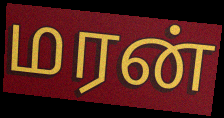
மரன்